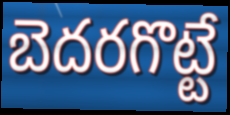
బెదరగొట్టే